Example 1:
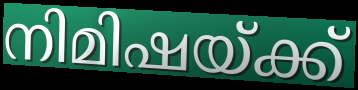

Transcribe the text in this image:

നിമിഷയ്ക്ക്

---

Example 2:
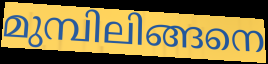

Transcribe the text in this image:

മുമ്പിലിങ്ങനെ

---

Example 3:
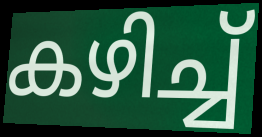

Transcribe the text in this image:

കഴിച്ച്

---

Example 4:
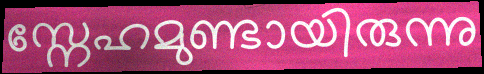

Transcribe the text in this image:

സ്നേഹമുണ്ടായിരുന്നു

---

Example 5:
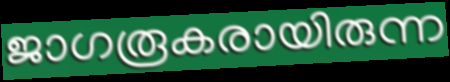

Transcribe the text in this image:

ജാഗരൂകരായിരുന്ന